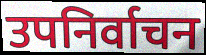
उपनिर्वाचन